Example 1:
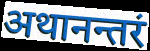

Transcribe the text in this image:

अथानन्तरं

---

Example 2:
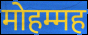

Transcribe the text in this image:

मोहम्मह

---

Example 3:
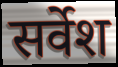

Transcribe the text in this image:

सर्वेश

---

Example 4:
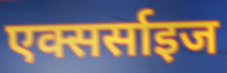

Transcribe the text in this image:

एक्सर्साइज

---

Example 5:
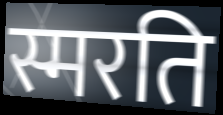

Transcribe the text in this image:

स्मरति